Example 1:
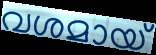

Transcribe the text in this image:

വശമായ്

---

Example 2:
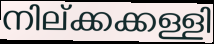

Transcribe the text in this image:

നില്ക്കക്കള്ളി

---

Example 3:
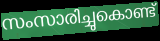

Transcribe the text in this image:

സംസാരിച്ചുകൊണ്ട്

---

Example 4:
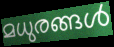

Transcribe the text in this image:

മധുരങ്ങൾ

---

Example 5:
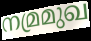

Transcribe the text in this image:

നമ്രമുഖ